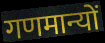
गणमान्यों